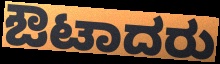
ಔಟಾದರು